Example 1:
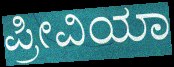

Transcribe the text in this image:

ಪ್ರೀವಿಯಾ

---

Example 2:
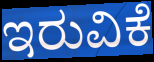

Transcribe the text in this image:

ಇರುವಿಕೆ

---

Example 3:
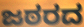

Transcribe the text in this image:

ಜಠರದ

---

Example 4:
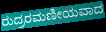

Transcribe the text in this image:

ರುದ್ರರಮಣೀಯವಾದ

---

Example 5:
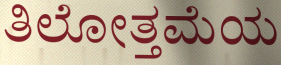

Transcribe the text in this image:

ತಿಲೋತ್ತಮೆಯ